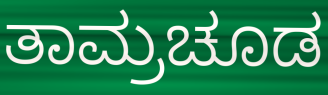
ತಾಮ್ರಚೂಡ